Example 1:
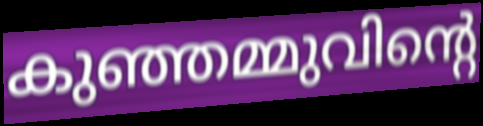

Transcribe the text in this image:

കുഞ്ഞമ്മുവിന്റെ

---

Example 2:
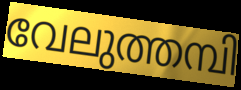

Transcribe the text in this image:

വേലുത്തമ്പി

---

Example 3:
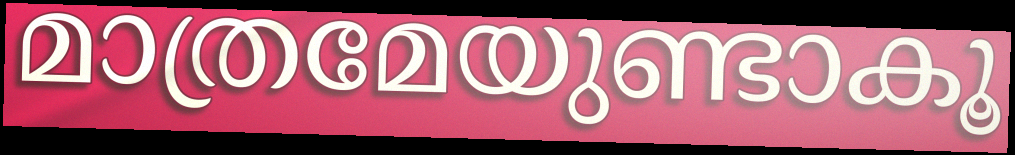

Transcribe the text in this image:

മാത്രമേയുണ്ടാകൂ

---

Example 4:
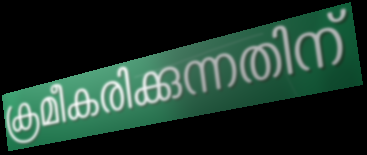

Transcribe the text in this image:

ക്രമീകരിക്കുന്നതിന്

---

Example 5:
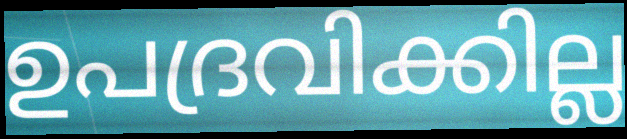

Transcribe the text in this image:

ഉപദ്രവിക്കില്ല